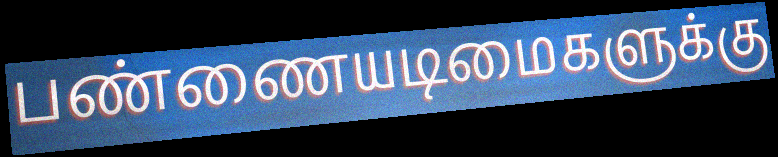
பண்ணையடிமைகளுக்கு